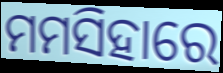
ମମସିହାରେ